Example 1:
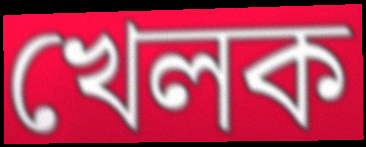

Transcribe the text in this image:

খেলক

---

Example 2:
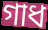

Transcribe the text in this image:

গাধ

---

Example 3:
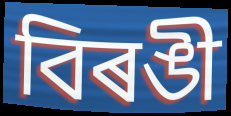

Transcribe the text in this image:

বিৰঙী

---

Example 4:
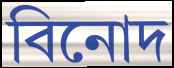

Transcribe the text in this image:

বিনোদ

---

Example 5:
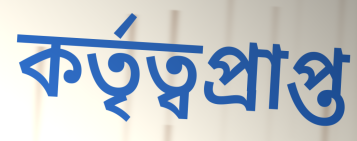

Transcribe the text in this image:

কৰ্তৃত্বপ্ৰাপ্ত